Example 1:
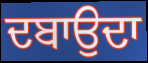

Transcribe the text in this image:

ਦਬਾਉਦਾ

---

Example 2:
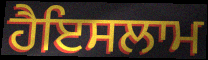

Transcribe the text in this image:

ਹੈਇਸਲਾਮ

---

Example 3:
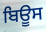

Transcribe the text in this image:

ਬਿਊਸ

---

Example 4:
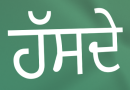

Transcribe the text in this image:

ਹੱਸਦੇ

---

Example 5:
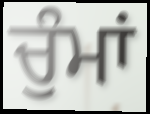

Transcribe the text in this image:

ਚੁੰਮਾਂ